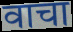
वाचा